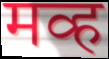
मव्ह